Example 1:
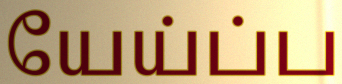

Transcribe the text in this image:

யேய்ப்ப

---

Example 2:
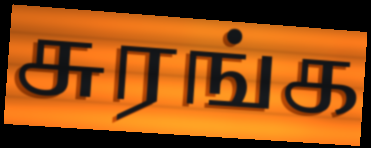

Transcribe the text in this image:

சுரங்க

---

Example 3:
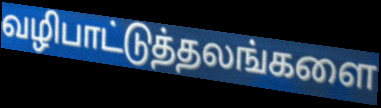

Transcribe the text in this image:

வழிபாட்டுத்தலங்களை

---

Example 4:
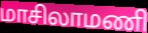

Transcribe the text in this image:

மாசிலாமணி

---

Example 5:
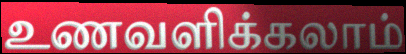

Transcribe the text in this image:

உணவளிக்கலாம்